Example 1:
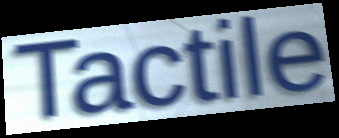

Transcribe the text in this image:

Tactile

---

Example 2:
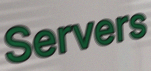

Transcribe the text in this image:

Servers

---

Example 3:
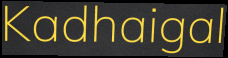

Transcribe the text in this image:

Kadhaigal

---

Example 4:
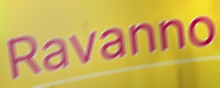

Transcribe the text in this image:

Ravanno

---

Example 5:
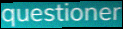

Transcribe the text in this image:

questioner